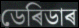
ডেৰিডাৰ